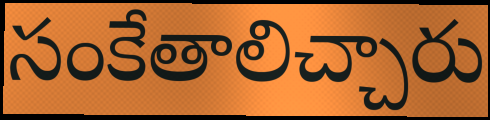
సంకేతాలిచ్చారు